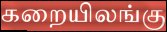
கறையிலங்கு